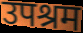
उपश्रम